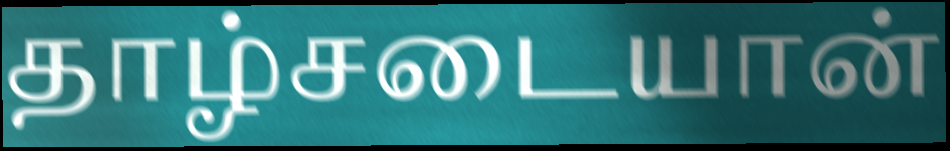
தாழ்சடையான்